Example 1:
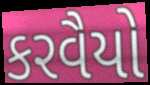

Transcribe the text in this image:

કરવૈયો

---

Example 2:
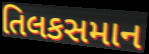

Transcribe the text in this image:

તિલકસમાન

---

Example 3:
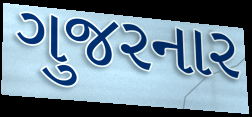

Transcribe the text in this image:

ગુજરનાર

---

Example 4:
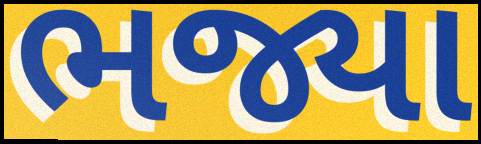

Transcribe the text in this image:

ભજ્યા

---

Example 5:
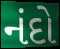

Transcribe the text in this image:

નંદો